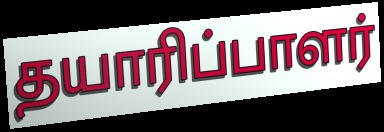
தயாரிப்பாளர்